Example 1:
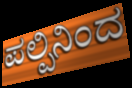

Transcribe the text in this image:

ಪಲ್ಪಿನಿಂದ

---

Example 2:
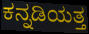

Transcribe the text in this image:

ಕನ್ನಡಿಯತ್ತ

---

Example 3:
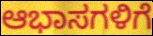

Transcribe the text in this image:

ಆಭಾಸಗಳಿಗೆ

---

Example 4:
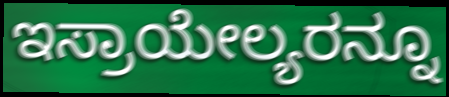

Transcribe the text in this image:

ಇಸ್ರಾಯೇಲ್ಯರನ್ನೂ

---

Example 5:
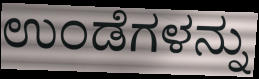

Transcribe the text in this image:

ಉಂಡೆಗಳನ್ನು